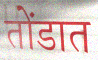
तोंडात